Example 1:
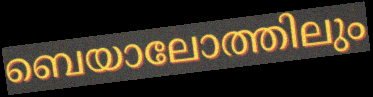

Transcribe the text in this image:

ബെയാലോത്തിലും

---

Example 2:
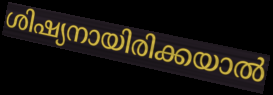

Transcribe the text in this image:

ശിഷ്യനായിരിക്കയാൽ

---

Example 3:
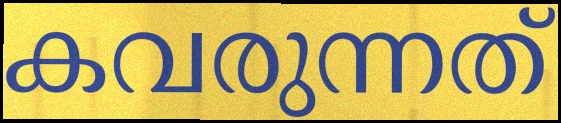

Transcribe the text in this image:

കവരുന്നത്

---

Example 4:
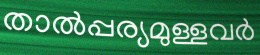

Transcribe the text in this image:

താൽപ്പര്യമുള്ളവർ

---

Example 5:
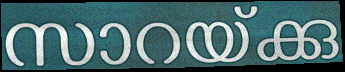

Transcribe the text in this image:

സാറയ്‌ക്കു